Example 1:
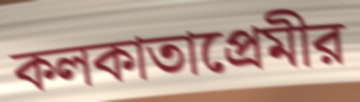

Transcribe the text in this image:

কলকাতাপ্রেমীর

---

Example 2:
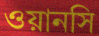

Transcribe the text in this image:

ওয়ানসি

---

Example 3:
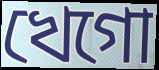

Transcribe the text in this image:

খেগো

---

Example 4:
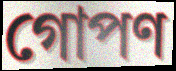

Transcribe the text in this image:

গোপণ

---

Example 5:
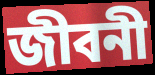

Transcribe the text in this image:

জীবনী